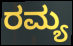
ರಮ್ಯ